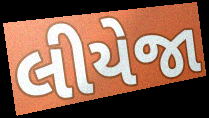
લીયેજા